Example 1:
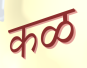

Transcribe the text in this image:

कळ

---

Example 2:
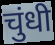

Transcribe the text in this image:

चुंधी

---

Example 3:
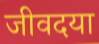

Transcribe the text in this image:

जीवदया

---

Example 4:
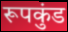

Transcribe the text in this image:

रूपकुंड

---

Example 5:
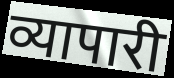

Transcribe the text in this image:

व्यापारी